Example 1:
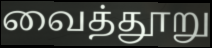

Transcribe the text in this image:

வைத்தூறு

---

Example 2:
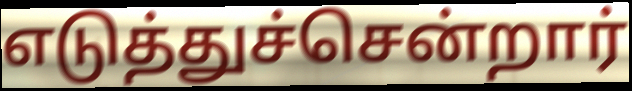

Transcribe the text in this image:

எடுத்துச்சென்றார்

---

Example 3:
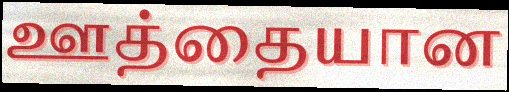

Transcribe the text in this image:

ஊத்தையான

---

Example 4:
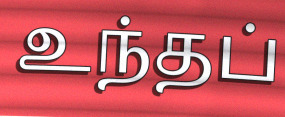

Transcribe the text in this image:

உந்தப்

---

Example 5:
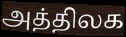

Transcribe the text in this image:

அத்திலக